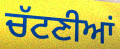
ਚੱਟਣੀਆਂ